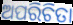
ଅପରିଚିତା